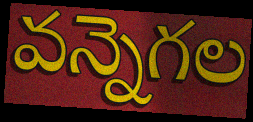
వన్నెగల